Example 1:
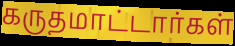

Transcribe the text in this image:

கருதமாட்டார்கள்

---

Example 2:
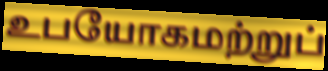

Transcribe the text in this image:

உபயோகமற்றுப்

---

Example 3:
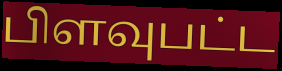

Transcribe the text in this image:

பிளவுபட்ட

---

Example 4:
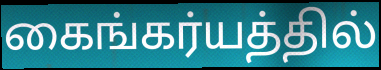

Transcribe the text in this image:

கைங்கர்யத்தில்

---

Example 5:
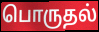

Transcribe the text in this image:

பொருதல்